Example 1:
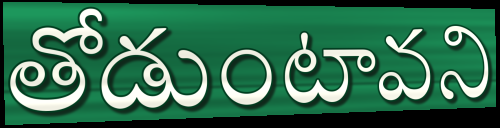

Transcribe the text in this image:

తోడుంటావని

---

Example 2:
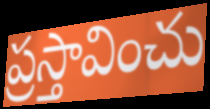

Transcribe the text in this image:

ప్రస్తావించు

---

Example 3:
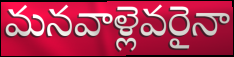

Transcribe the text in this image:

మనవాళ్లెవరైనా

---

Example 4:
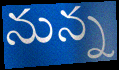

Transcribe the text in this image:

నున్న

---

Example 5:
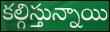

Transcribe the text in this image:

కల్గిస్తున్నాయి